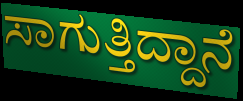
ಸಾಗುತ್ತಿದ್ದಾನೆ